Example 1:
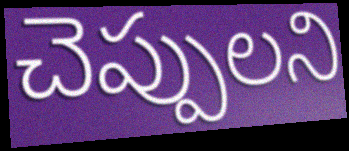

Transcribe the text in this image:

చెప్పులని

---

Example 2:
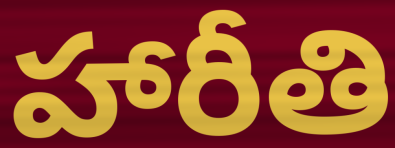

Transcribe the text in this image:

హారీతి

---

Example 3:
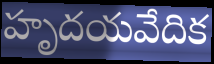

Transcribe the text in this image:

హృదయవేదిక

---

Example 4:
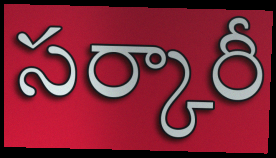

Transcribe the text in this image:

సర్కారీ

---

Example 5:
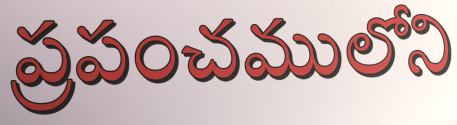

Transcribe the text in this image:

ప్రపంచములోని